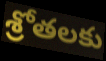
శ్రోతలకు